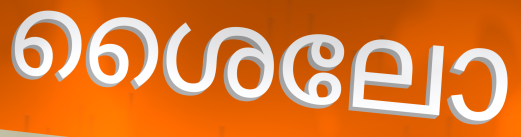
ശൈലോ